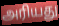
அரியது